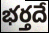
భర్తదే